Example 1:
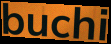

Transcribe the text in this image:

buchi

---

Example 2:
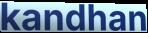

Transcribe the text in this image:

kandhan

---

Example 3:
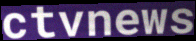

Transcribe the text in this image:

ctvnews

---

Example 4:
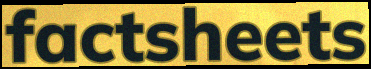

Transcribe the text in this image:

factsheets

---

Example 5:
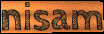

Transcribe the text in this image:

nisam